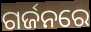
ଗର୍ଜନରେ